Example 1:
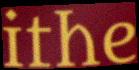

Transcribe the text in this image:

ithe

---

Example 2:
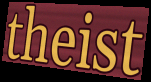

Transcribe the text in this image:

theist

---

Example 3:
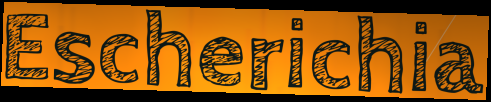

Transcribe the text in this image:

Escherichia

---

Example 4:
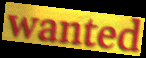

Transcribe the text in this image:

wanted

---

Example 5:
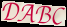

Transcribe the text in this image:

DABC